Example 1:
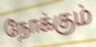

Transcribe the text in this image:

நோக்கும்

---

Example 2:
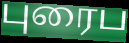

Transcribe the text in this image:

புரைப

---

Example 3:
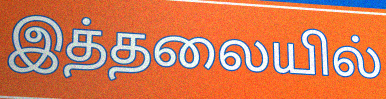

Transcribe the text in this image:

இத்தலையில்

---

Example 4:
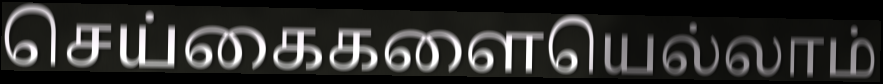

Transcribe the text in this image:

செய்கைகளையெல்லாம்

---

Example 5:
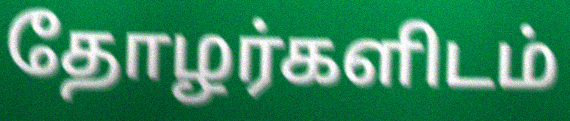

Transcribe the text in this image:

தோழர்களிடம்